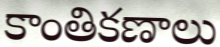
కాంతికణాలు